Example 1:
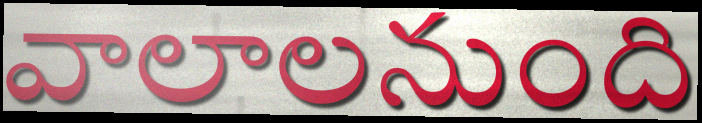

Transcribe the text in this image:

వాలాలనుంది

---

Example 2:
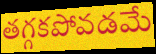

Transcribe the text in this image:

తగ్గకపోవడమే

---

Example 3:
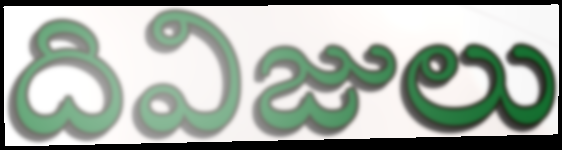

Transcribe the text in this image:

దివిజులు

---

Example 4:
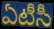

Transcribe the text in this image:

ఏటీసీ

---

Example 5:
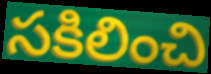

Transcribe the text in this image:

సకిలించి